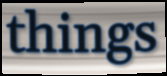
things